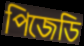
পিজেডি